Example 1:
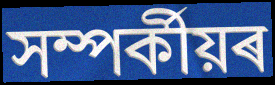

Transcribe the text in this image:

সম্পৰ্কীয়ৰ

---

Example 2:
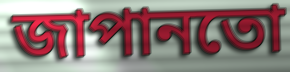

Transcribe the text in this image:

জাপানতো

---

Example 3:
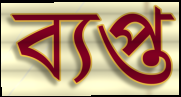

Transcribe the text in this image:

ব্যপ্ত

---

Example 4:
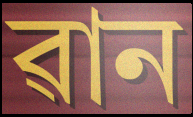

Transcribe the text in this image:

ৱান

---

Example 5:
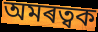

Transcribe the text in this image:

অমৰত্বক